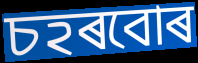
চহৰবোৰ